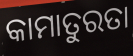
କାମାତୁରତା